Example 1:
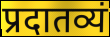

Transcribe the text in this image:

प्रदातव्यं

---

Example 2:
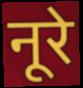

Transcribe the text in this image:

नूरे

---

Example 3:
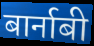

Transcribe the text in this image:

बार्नाबी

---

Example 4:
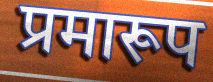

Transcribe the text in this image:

प्रमारूप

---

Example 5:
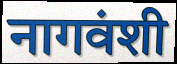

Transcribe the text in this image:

नागवंशी